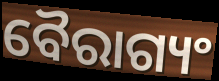
ବୈରାଗ୍ୟଂ